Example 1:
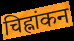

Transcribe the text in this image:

चिह्नांकन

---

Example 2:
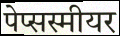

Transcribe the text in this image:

पेप्सस्मीयर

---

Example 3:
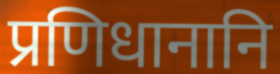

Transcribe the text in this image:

प्रणिधानानि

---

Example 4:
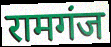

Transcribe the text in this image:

रामगंज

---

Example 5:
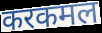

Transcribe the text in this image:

करकमल